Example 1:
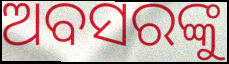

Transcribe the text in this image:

ଅବସରଙ୍କୁ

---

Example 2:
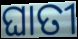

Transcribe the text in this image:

ଘାତୀ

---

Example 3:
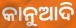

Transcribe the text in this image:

କାନୁଆଦି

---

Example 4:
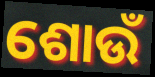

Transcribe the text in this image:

ଶୋଉଁ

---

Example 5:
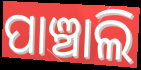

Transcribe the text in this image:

ପାଞ୍ଚାଲି